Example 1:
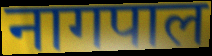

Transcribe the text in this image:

नागपाल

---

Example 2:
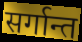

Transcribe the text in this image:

सर्गान्त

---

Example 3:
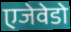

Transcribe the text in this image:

एजेवेडो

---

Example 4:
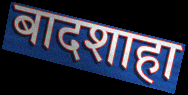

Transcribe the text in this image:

बादशाहा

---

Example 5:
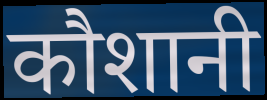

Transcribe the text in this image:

कौशानी